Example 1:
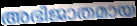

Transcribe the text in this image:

അഭിജാതമായ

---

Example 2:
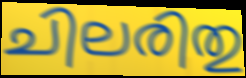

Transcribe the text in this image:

ചിലരിതു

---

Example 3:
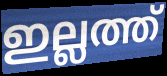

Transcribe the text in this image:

ഇല്ലത്ത്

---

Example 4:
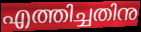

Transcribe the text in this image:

എത്തിച്ചതിനു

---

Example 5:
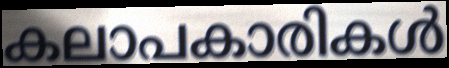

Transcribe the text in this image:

കലാപകാരികൾ